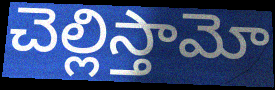
చెల్లిస్తామో